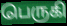
பெருகி